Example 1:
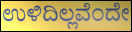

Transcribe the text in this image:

ಉಳಿದಿಲ್ಲವೆಂದೇ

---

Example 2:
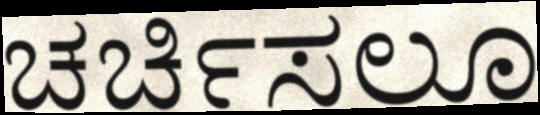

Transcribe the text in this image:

ಚರ್ಚಿಸಲೂ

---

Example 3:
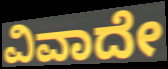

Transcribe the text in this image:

ವಿವಾದೇ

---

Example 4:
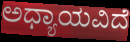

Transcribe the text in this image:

ಅಧ್ಯಾಯವಿದೆ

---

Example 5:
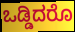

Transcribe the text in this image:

ಒಡ್ಡಿದರೊ